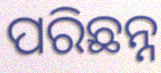
ପରିଛନ୍ନ